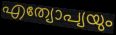
എത്യോപ്യയും